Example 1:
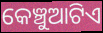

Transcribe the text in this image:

କେଞ୍ଚୁଆଟିଏ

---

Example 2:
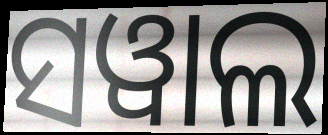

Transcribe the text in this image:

ସୱାଲ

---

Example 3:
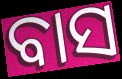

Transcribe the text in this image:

ବାସ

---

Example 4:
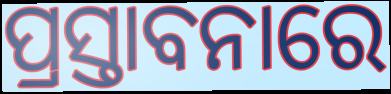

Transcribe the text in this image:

ପ୍ରସ୍ତାବନାରେ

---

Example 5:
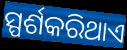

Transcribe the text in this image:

ସ୍ପର୍ଶକରିଥାଏ